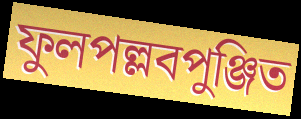
ফুলপল্লবপুঞ্জিত